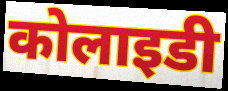
कोलाइडी